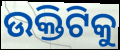
ଉକ୍ତିଟିକୁ